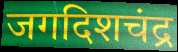
जगदिशचंद्र